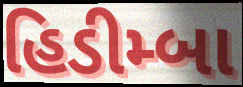
હિડીમ્બા